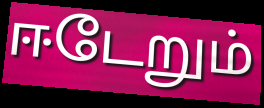
ஈடேறும்